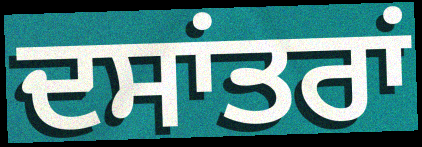
ਦਸਾਂਤਰਾਂ